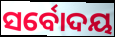
ସର୍ବୋଦୟ